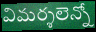
విమర్శలెన్నో